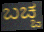
ಬಚ್ಚ